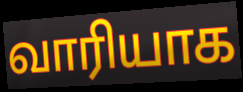
வாரியாக